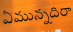
ఏమున్నదిరా